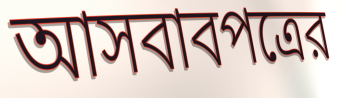
আসবাবপত্রের